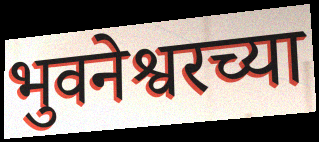
भुवनेश्वरच्या